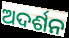
ଅଦର୍ଶନ